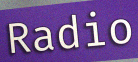
Radio